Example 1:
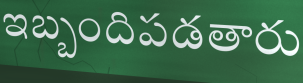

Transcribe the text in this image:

ఇబ్బందిపడతారు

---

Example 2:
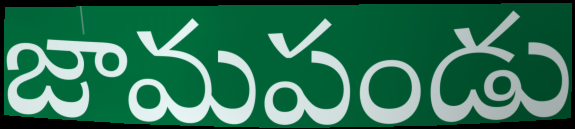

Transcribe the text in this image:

జామపండు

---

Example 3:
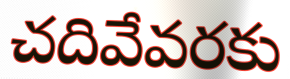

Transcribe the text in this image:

చదివేవరకు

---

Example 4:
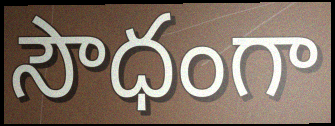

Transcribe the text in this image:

సౌధంగా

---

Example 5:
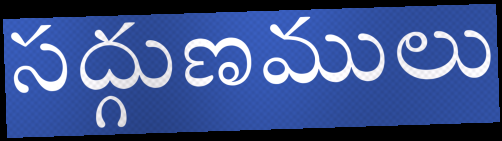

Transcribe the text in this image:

సద్గుణములు